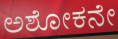
ಅಶೋಕನೇ